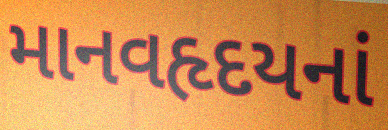
માનવહૃદયનાં